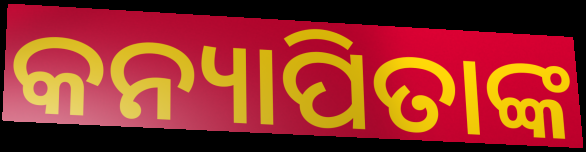
କନ୍ୟାପିତାଙ୍କ